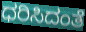
ಧರಿಸಿದಂತೆ